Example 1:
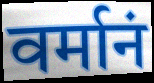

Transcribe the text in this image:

वर्मानं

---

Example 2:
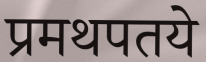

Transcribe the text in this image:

प्रमथपतये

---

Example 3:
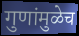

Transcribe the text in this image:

गुणांमुळेच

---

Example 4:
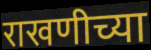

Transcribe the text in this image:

राखणीच्या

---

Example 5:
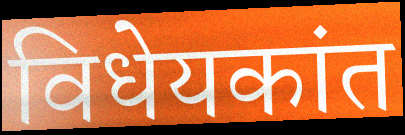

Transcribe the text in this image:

विधेयकांत